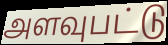
அளவுபட்டு